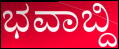
ಭವಾಬ್ದಿ